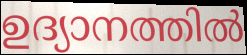
ഉദ്യാനത്തിൽ